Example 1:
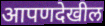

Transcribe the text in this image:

आपणदेखील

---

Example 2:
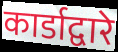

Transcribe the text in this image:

कार्डाद्वारे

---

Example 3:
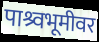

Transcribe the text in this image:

पाश्र्वभूमीवर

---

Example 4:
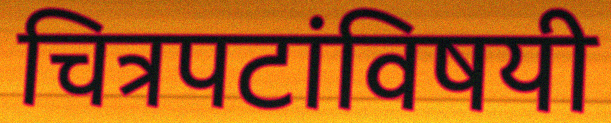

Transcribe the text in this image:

चित्रपटांविषयी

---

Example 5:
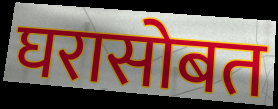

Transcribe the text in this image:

घरासोबत